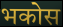
भकोस